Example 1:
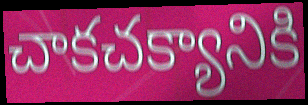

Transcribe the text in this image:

చాకచక్యానికి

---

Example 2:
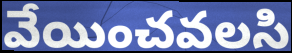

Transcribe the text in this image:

వేయించవలసి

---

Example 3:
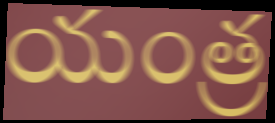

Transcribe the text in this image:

యంత్ర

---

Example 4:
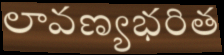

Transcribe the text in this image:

లావణ్యభరిత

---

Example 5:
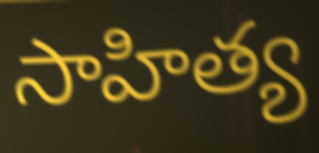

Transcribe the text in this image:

సాహిత్య